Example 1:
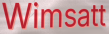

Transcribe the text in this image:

Wimsatt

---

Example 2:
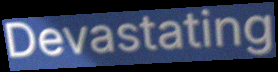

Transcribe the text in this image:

Devastating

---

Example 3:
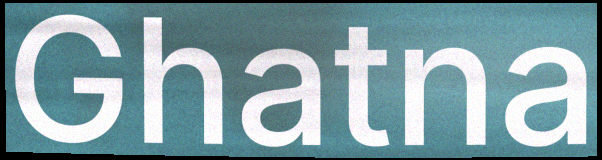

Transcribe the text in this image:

Ghatna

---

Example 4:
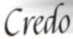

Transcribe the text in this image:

Credo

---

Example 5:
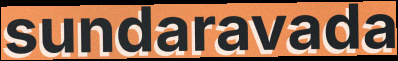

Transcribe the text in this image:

sundaravada